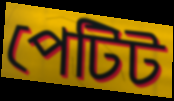
পেটিট